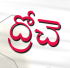
ద్రోచె